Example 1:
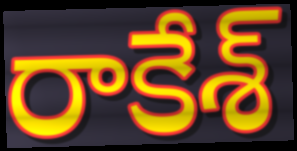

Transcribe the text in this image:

రాకేశ్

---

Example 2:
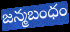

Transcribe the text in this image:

జన్మబంధం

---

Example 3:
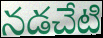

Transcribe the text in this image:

నడచేటి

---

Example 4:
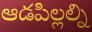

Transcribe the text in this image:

ఆడపిల్లల్ని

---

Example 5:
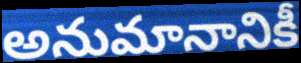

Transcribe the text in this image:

అనుమానానికీ